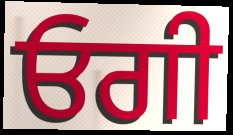
ਓਗੀ